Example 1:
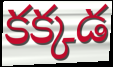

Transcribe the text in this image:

కక్కడ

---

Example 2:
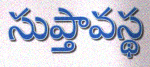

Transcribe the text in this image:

సుప్తావస్థ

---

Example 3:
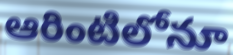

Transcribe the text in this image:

ఆరింటిలోనూ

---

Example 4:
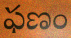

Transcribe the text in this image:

ఫణం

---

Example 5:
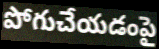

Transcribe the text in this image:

పోగుచేయడంపై